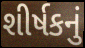
શીર્ષકનું